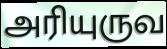
அரியுருவ